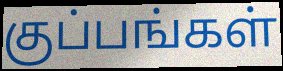
குப்பங்கள்